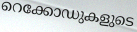
റെക്കോഡുകളുടെ